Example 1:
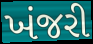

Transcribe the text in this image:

ખંજરી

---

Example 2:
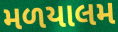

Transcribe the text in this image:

મળયાલમ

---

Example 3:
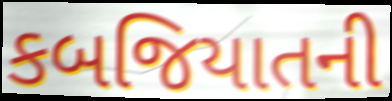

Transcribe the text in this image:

કબજિયાતની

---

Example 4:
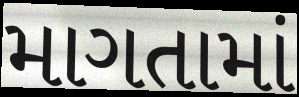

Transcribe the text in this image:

માગતામાં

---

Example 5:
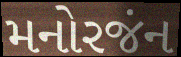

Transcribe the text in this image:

મનોરજંન